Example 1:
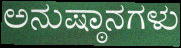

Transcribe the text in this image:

ಅನುಷ್ಠಾನಗಳು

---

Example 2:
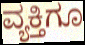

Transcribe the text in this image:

ವ್ಯಕ್ತಿಗೂ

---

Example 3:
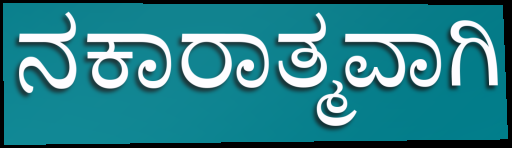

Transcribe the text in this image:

ನಕಾರಾತ್ಮವಾಗಿ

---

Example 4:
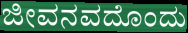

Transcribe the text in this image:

ಜೀವನವದೊಂದು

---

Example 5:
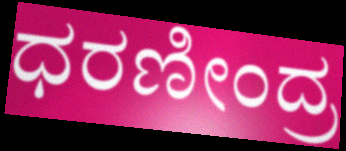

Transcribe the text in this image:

ಧರಣೀಂದ್ರ